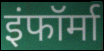
इंफॉर्मा